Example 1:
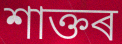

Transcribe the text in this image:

শাক্তৰ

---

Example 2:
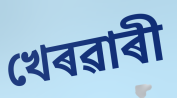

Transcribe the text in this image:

খেৰৱাৰী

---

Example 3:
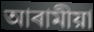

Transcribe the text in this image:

আৰামীয়া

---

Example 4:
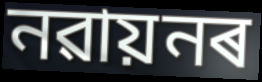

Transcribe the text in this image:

নৱায়নৰ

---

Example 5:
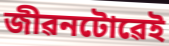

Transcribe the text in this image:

জীৱনটোৱেই